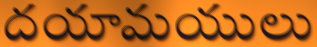
దయామయులు